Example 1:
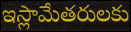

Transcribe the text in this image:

ఇస్లామేతరులకు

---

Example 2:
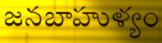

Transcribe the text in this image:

జనబాహుళ్యం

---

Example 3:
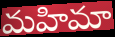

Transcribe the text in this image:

మహిమా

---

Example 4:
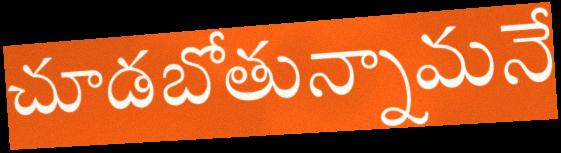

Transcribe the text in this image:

చూడబోతున్నామనే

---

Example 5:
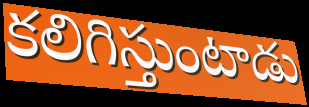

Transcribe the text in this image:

కలిగిస్తుంటాడు